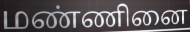
மண்ணினை